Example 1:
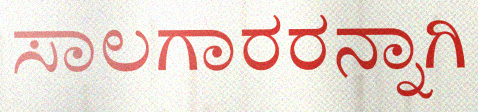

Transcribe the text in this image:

ಸಾಲಗಾರರನ್ನಾಗಿ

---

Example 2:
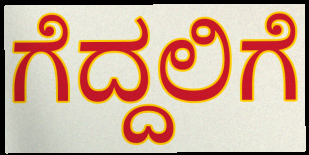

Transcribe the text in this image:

ಗೆದ್ದಲಿಗೆ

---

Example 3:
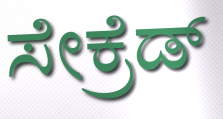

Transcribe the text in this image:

ಸೇಕ್ರೆಡ್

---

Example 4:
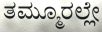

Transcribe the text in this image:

ತಮ್ಮೂರಲ್ಲೇ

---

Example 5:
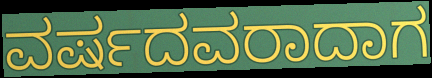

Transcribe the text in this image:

ವರ್ಷದವರಾದಾಗ